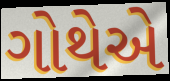
ગોથેએ